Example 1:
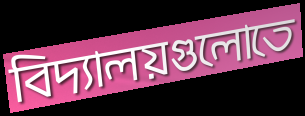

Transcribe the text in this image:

বিদ্যালয়গুলোতে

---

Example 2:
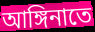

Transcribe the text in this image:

আঙ্গিনাতে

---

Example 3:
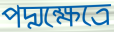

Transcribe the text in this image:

পদ্মক্ষেত্রে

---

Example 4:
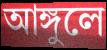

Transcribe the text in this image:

আঙ্গুলে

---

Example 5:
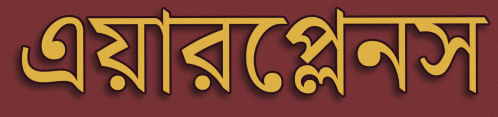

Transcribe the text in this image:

এয়ারপ্লেনস